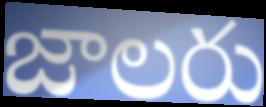
జాలరు